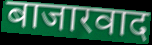
बाजारवाद